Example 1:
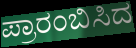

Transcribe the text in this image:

ಪ್ರಾರಂಬಿಸಿದ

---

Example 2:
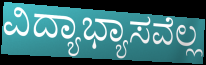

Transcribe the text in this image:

ವಿದ್ಯಾಭ್ಯಾಸವೆಲ್ಲ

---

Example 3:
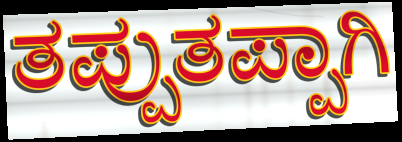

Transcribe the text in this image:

ತಪ್ಪುತಪ್ಪಾಗಿ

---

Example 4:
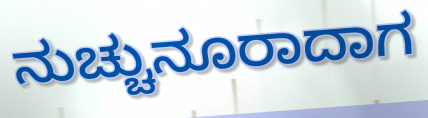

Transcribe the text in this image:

ನುಚ್ಚುನೂರಾದಾಗ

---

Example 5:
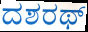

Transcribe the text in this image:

ದಶರಥ್